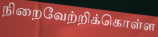
நிறைவேற்றிக்கொள்ள